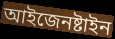
আইজেনষ্টাইন